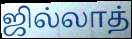
ஜில்லாத்